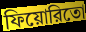
ফিয়োরিতো